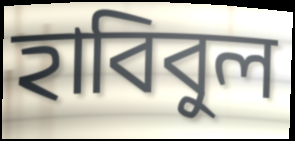
হাবিবুল